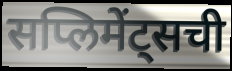
सप्लिमेंट्सची